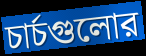
চার্চগুলোর